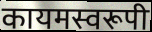
कायमस्वरूपी